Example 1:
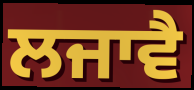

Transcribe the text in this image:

ਲਜਾਵੈ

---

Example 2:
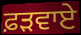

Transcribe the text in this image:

ਫ਼ੜਵਾਏ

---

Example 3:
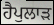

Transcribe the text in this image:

ਹੈਪੁਲਾੜ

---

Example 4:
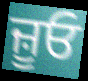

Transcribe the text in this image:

ਜ਼ੂਓ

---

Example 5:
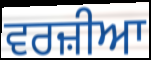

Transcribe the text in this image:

ਵਰਜ਼ੀਆ